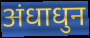
अंधाधुन